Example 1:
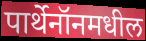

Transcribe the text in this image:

पार्थेनॉनमधील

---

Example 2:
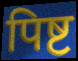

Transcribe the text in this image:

पिष्ट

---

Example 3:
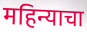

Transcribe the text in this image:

महिन्याचा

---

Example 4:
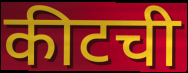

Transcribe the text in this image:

कीटची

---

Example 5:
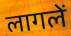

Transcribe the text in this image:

लागलें